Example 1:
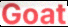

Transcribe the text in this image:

Goat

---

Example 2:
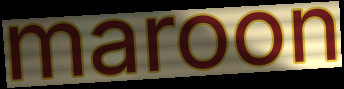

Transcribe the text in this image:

maroon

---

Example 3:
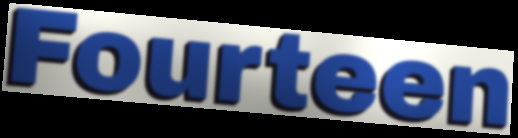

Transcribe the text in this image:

Fourteen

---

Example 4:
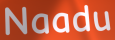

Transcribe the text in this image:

Naadu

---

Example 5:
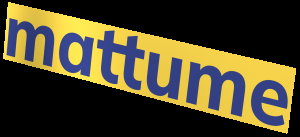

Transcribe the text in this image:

mattume